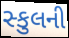
સ્કુલની